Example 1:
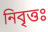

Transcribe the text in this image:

নিবৃত্তঃ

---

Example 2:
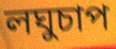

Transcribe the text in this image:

লঘুচাপ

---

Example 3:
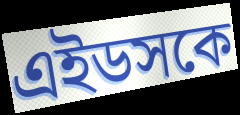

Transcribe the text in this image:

এইডসকে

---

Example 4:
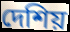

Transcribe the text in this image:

দেশিয়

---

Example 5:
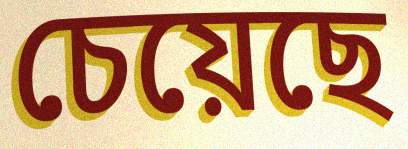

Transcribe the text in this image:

চেয়েছে